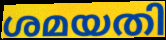
ശമയതി